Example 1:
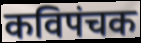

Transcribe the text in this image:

कविपंचक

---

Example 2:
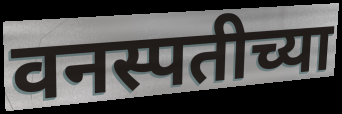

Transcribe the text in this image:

वनस्पतीच्या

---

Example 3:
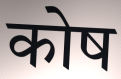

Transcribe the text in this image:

कोष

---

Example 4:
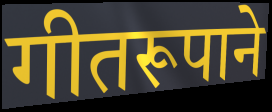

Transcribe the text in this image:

गीतरूपाने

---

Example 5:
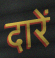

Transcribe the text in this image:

दारें